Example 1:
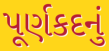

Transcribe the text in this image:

પૂર્ણકદનું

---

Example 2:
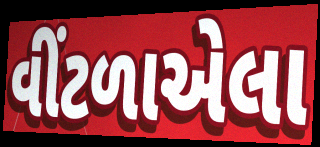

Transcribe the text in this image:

વીંટળાએલા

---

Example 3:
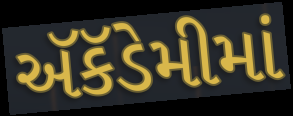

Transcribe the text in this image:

ઍકૅડેમીમાં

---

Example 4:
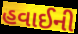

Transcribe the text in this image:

હવાઈની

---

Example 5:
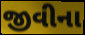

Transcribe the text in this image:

જીવીના